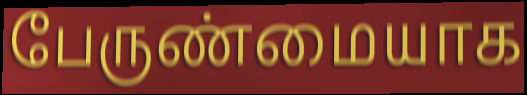
பேருண்மையாக